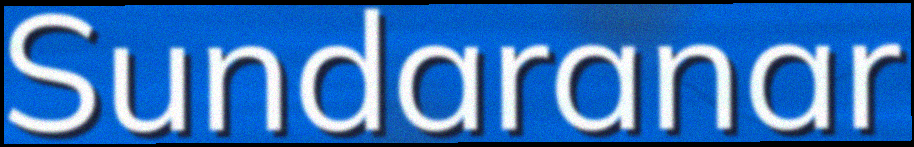
Sundaranar